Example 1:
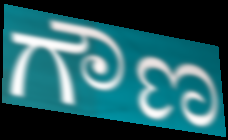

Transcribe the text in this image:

ಗೌಣ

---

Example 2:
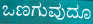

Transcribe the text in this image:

ಒಣಗುವುದೂ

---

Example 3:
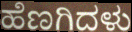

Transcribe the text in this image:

ಹೆಣಗಿದಳು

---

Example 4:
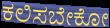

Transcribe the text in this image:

ಕಲಿಸಬೇಕೋ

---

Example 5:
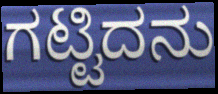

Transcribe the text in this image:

ಗಟ್ಟಿದನು